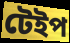
টেইপ